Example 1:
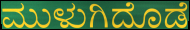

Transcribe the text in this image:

ಮುಳುಗಿದೊಡೆ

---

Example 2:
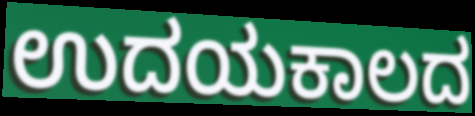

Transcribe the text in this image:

ಉದಯಕಾಲದ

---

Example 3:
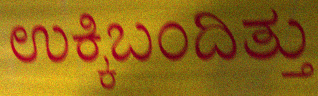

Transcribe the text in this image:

ಉಕ್ಕಿಬಂದಿತ್ತು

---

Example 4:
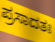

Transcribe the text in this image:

ಪ್ರಸಾದತಃ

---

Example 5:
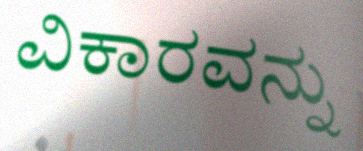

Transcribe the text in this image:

ವಿಕಾರವನ್ನು